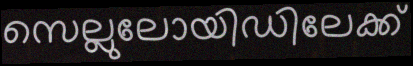
സെല്ലുലോയിഡിലേക്ക്